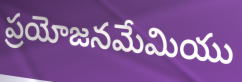
ప్రయోజనమేమియు